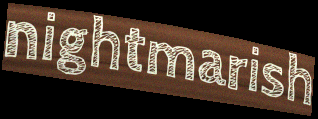
nightmarish